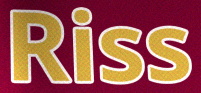
Riss